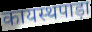
कायस्थपाड़ा